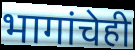
भागांचेही